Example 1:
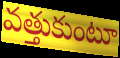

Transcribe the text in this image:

వత్తుకుంటూ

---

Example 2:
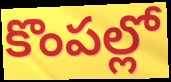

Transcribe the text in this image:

కొంపల్లో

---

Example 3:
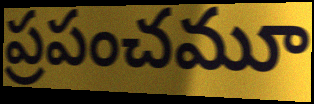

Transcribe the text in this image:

ప్రపంచమూ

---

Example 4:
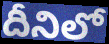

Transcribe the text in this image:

దీనిలో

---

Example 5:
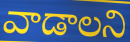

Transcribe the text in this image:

వాడాలని